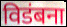
विडंबना